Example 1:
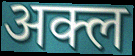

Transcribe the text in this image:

अक्ल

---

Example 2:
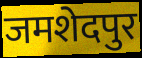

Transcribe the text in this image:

जमशेदपुर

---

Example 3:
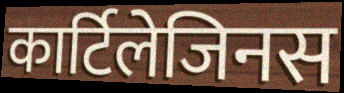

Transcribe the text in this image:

कार्टिलेजिनस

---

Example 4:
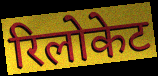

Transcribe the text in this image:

रिलोकेट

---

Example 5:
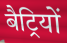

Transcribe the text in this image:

बैट्रियों